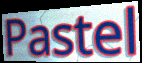
Pastel